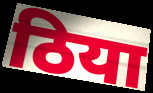
ठिया